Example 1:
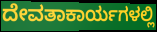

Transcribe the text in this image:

ದೇವತಾಕಾರ್ಯಗಳಲ್ಲಿ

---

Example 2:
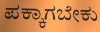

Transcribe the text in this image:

ಪಕ್ಕಾಗಬೇಕು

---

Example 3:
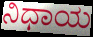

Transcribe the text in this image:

ನಿಧಾಯ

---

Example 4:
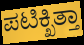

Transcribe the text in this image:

ಪಟಿಕ್ಖಿತ್ತಾ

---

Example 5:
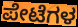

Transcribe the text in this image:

ಪೇಟೆಗಳ